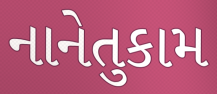
નાનેતુકામ